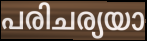
പരിചര്യയാ